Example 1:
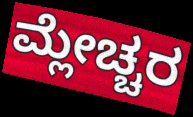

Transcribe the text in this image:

ಮ್ಲೇಚ್ಚರ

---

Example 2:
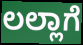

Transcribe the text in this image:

ಲಲ್ಲಾಗೆ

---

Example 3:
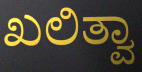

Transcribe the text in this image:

ಖಲಿತ್ವಾ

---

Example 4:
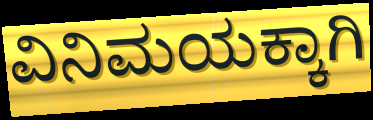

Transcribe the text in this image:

ವಿನಿಮಯಕ್ಕಾಗಿ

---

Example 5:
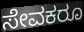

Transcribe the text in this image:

ಸೇವಕರೂ